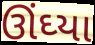
ઊંઘ્યા